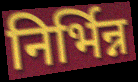
निर्भिन्न